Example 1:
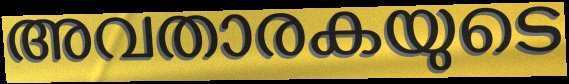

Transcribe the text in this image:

അവതാരകയുടെ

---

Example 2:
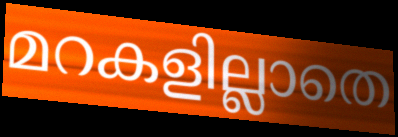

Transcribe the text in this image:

മറകളില്ലാതെ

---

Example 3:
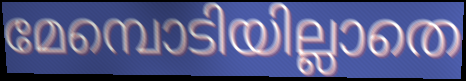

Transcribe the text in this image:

മേമ്പൊടിയില്ലാതെ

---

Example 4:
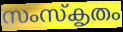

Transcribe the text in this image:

സംസ്‌കൃതം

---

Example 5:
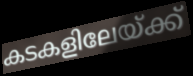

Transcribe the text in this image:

കടകളിലേയ്ക്ക്